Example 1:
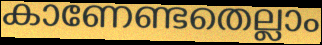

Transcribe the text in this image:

കാണേണ്ടതെല്ലാം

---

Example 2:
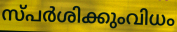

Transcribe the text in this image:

സ്പർശിക്കുംവിധം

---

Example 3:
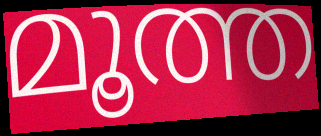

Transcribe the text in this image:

മൂത്ത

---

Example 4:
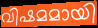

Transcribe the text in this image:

വിഷമമായി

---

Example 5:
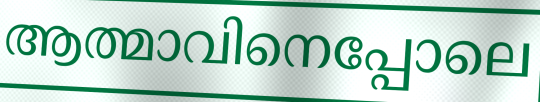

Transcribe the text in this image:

ആത്മാവിനെപ്പോലെ